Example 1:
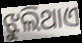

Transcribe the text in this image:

ଝୁଲିଥାଏ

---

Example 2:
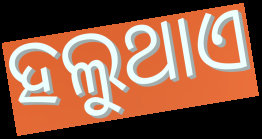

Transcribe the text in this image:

ହଲୁଥାଏ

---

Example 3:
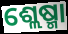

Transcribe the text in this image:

ଶ୍ଲେଷ୍ମା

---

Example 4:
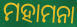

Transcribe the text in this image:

ମହାମନା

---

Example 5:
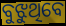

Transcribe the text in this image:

ବୁଝୁଥିବେ